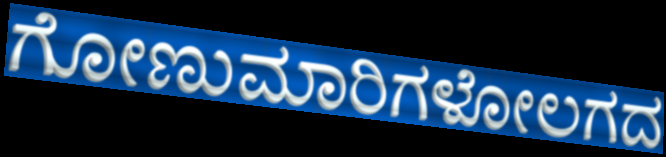
ಗೋಣುಮಾರಿಗಳೋಲಗದ